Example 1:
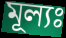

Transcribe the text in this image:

মূল্যঃ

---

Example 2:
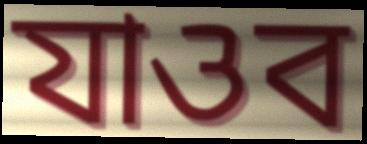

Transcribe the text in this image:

যাওব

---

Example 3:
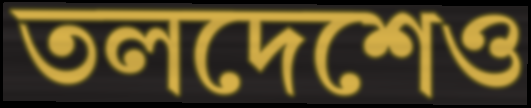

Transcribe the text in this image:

তলদেশেও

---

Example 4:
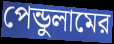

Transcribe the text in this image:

পেন্ডুলামের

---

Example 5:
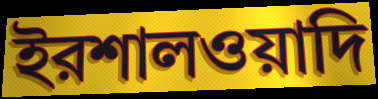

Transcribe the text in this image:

ইরশালওয়াদি